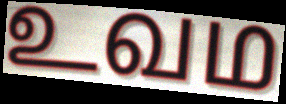
உவம